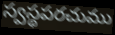
స్వస్థపరచుము